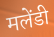
मलेंडी